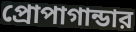
প্রোপাগান্ডার